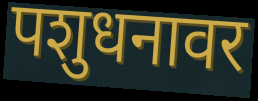
पशुधनावर